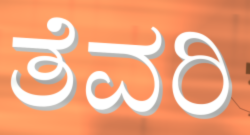
ತೆವರಿ